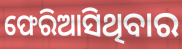
ଫେରିଆସିଥିବାର